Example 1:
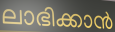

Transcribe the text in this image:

ലാഭിക്കാൻ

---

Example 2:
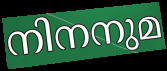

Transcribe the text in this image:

നിനനുമ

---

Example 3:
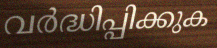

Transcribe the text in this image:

വർദ്ധിപ്പിക്കുക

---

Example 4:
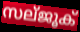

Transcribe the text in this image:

സല്ജൂക്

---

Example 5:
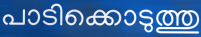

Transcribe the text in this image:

പാടിക്കൊടുത്തു